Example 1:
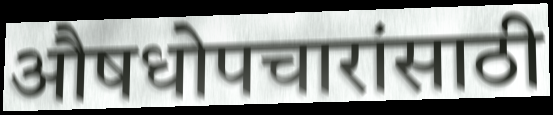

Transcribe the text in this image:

औषधोपचारांसाठी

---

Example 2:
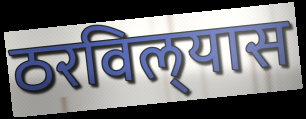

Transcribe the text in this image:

ठरविल्यास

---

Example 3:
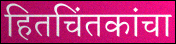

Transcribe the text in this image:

हितचिंतकांचा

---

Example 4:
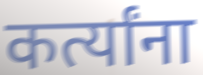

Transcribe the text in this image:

कर्त्यांना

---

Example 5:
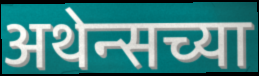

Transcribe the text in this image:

अथेन्सच्या